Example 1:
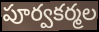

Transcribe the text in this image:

పూర్వకర్మల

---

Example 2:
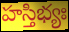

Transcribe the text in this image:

హస్తిభ్యః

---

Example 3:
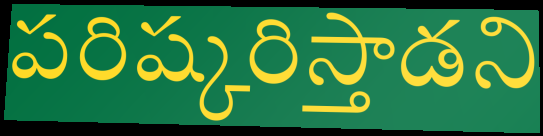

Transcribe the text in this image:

పరిష్కరిస్తాడని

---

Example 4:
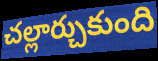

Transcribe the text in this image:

చల్లార్చుకుంది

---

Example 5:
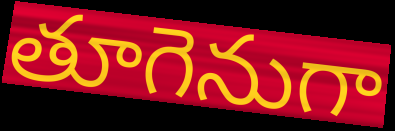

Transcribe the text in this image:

తూగెనుగా